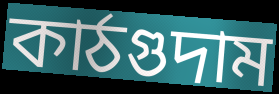
কাঠগুদাম